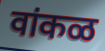
वांकळ